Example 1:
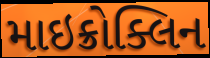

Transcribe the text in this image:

માઇક્રોક્લિન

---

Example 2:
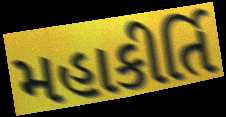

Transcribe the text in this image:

મહાકીર્તિ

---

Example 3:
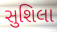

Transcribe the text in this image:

સુશિલા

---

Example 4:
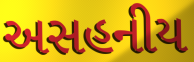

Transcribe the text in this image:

અસહનીય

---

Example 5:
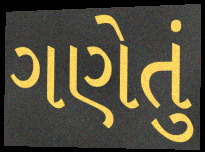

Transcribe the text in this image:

ગણેતું